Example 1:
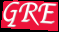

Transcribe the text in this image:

GRE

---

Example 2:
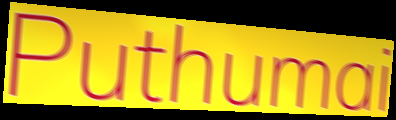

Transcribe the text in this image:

Puthumai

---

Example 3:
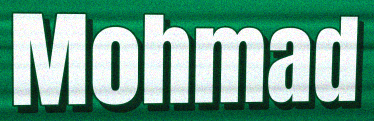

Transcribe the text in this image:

Mohmad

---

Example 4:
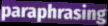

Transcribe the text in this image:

paraphrasing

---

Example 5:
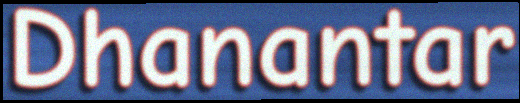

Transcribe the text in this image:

Dhanantar